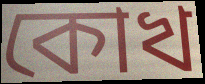
কোখ